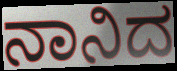
ನಾನಿದ